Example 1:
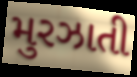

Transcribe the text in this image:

મુરઝાતી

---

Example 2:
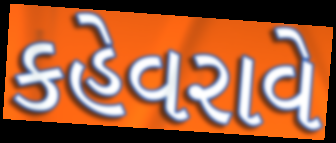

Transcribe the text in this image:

કહેવરાવે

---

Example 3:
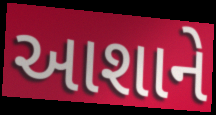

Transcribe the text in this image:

આશાને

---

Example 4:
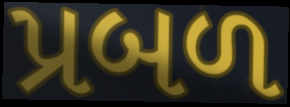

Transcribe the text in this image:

પ્રબળ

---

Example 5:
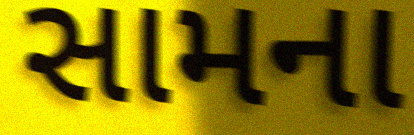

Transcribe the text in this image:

સામના